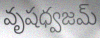
వృషధ్వజమ్